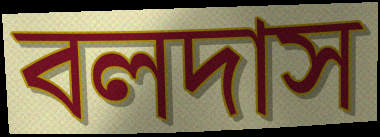
বলদাস